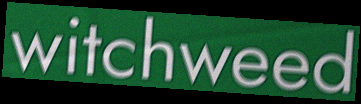
witchweed